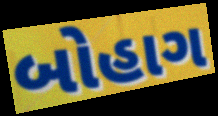
બોહાગ